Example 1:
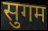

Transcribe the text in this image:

सुगम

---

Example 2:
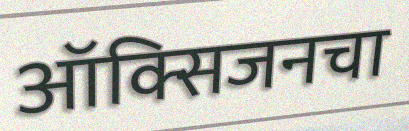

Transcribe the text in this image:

ऑक्सिजनचा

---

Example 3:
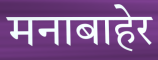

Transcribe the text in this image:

मनाबाहेर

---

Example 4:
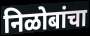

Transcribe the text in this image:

निळोबांचा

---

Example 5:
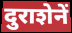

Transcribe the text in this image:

दुराशेनें